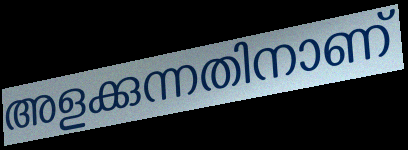
അളക്കുന്നതിനാണ്